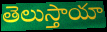
తెలుస్తాయా